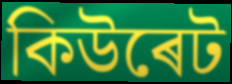
কিউৰেট